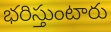
భరిస్తుంటారు